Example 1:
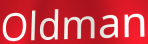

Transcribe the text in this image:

Oldman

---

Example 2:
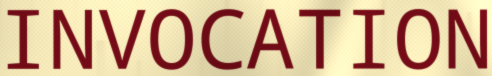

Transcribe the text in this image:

INVOCATION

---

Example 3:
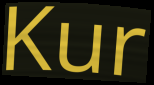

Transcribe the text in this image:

Kur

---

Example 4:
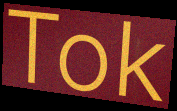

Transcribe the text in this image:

Tok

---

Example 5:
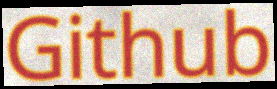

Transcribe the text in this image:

Github